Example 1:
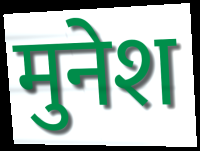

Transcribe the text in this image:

मुनेश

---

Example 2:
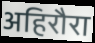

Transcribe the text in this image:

अहिरौरा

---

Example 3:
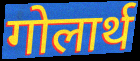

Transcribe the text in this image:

गोलार्थ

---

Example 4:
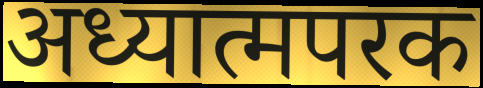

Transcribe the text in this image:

अध्यात्मपरक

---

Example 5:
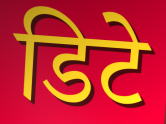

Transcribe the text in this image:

डिटे